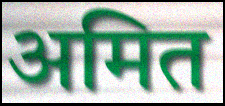
अमित